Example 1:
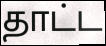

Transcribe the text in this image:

தாட்ட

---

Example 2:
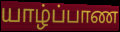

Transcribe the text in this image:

யாழ்ப்பாண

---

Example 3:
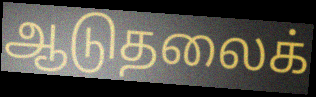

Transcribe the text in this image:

ஆடுதலைக்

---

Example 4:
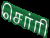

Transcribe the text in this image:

செர்ரி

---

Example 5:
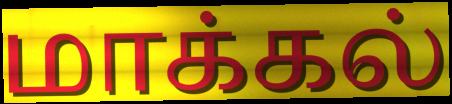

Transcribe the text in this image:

மாக்கல்